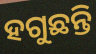
ହଗୁଛନ୍ତି